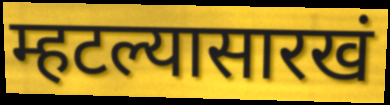
म्हटल्यासारखं